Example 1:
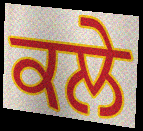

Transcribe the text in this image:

ਕਲੇ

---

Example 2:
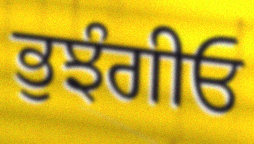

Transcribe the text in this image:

ਭੁਝੰਗੀਓ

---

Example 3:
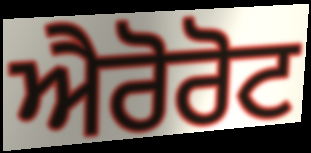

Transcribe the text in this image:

ਐਰੋਰੋਟ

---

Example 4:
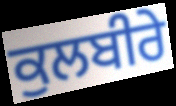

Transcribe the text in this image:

ਕੁਲਬੀਰੇ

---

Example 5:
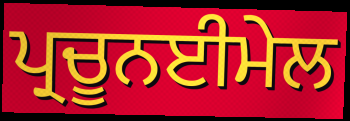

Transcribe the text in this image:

ਪ੍ਰਚੂਨਈਮੇਲ